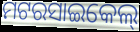
ମଟରସାଇକେଲ୍